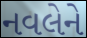
નવલેને